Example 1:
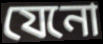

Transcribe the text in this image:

যেনো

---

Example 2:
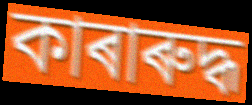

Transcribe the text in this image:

কাৰাৰুদ্ধ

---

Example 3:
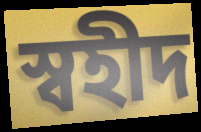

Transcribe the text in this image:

স্বহীদ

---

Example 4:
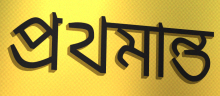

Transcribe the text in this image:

প্ৰথমান্ত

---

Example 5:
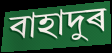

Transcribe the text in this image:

বাহাদুৰ